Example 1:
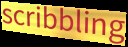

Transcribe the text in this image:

scribbling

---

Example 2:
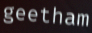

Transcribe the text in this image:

geetham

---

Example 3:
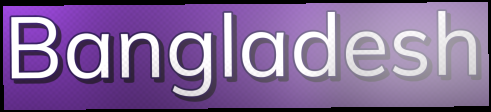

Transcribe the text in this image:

Bangladesh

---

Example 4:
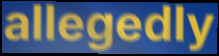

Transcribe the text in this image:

allegedly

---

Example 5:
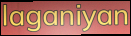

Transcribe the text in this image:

laganiyan